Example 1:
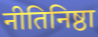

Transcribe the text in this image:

नीतिनिष्ठा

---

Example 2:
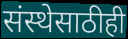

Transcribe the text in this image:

संस्थेसाठीही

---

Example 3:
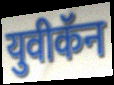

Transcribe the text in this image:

युवीकॅन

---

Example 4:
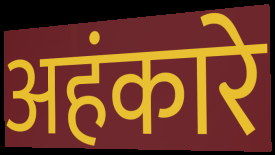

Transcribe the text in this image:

अहंकारे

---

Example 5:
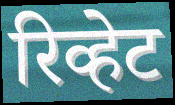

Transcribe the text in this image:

रिव्हेट